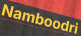
Namboodri